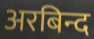
अरबिन्द